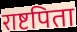
राष्टपिता